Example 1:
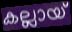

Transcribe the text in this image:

കല്ലായ്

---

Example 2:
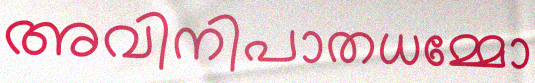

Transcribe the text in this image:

അവിനിപാതധമ്മോ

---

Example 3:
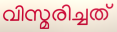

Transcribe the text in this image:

വിസ്മരിച്ചത്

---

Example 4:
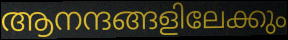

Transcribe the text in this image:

ആനന്ദങ്ങളിലേക്കും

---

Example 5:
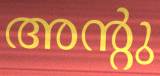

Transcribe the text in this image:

അന്റു